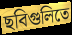
ছবিগুলিতে